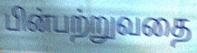
பின்பற்றுவதை